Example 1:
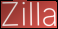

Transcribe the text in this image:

Zilla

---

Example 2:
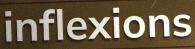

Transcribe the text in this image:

inflexions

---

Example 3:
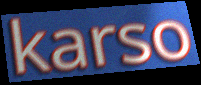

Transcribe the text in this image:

karso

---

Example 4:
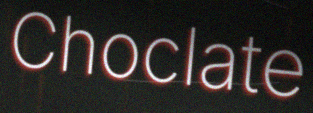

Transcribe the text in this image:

Choclate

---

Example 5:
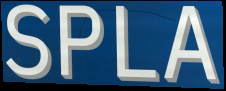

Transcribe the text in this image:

SPLA